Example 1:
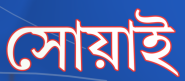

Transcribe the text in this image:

সোয়াই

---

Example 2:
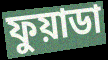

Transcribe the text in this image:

ফুয়াডা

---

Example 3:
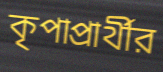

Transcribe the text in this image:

কৃপাপ্রার্থীর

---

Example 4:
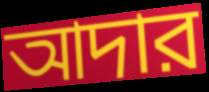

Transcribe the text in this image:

আদার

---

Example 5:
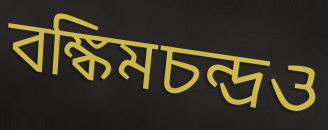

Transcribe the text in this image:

বঙ্কিমচন্দ্রও